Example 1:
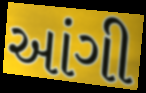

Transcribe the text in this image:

આંગી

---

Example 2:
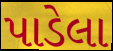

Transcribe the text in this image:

પાડેલા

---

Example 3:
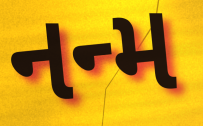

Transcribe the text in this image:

નન્મ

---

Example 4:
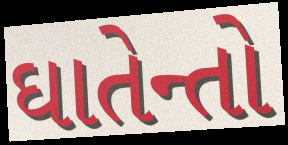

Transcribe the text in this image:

ઘાતેન્તો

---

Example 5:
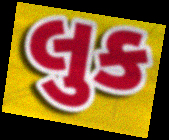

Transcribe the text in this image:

લુક